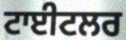
ਟਾਈਟਲਰ